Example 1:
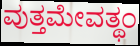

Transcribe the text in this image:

ವುತ್ತಮೇವತ್ಥಂ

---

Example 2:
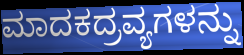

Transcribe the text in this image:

ಮಾದಕದ್ರವ್ಯಗಳನ್ನು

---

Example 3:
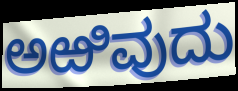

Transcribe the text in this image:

ಅಱಿವುದು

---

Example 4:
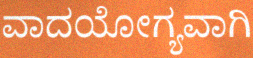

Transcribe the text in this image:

ವಾದಯೋಗ್ಯವಾಗಿ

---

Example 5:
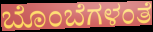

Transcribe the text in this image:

ಬೊಂಬೆಗಳಂತೆ